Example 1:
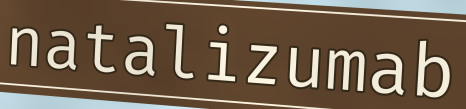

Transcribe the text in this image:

natalizumab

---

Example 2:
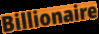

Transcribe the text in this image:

Billionaire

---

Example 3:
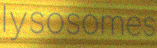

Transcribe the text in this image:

lysosomes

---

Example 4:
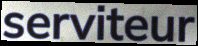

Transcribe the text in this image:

serviteur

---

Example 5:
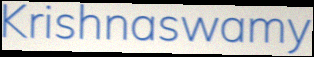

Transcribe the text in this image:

Krishnaswamy